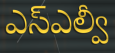
ఎస్ఎల్వీ